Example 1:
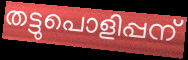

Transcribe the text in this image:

തട്ടുപൊളിപ്പന്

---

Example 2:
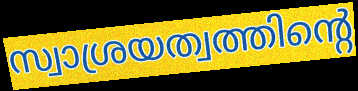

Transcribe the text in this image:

സ്വാശ്രയത്വത്തിന്റെ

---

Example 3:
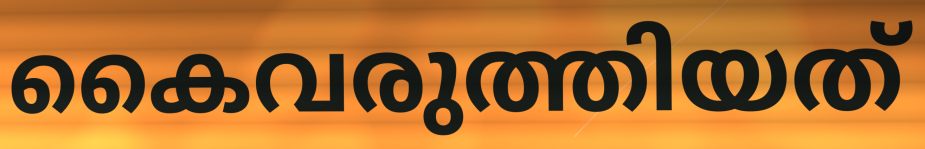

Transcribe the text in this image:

കൈവരുത്തിയത്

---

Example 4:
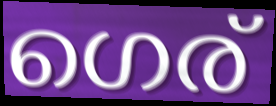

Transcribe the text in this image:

ഗെര്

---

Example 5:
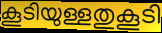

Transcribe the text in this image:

കൂടിയുള്ളതുകൂടി